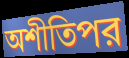
অশীতিপর